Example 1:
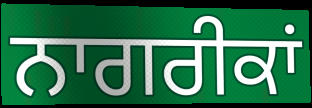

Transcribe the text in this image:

ਨਾਗਰੀਕਾਂ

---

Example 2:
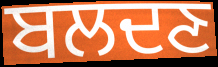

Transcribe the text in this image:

ਬਲਦਣ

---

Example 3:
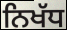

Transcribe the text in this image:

ਨਿਖੱਧ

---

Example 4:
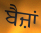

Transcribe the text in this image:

ਬੈਜ਼ਾਂ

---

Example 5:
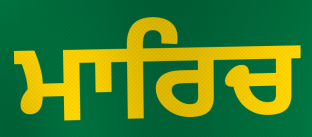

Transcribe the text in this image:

ਮਾਰਿਚ